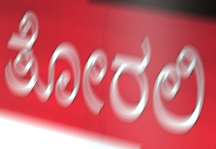
ತೋರಲಿ